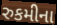
રુકમીના